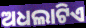
ଅଧଲାଟିଏ